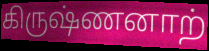
கிருஷ்ணனாற்